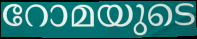
റോമയുടെ